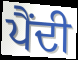
ਪੈਂਦੀ